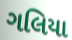
ગલિયા